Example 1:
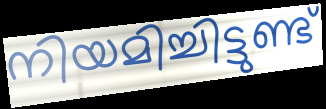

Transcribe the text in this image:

നിയമിച്ചിട്ടുണ്ട്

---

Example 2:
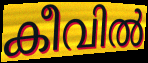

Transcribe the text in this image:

കീവിൽ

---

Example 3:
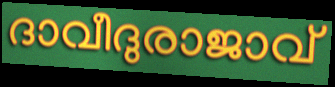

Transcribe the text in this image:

ദാവീദുരാജാവ്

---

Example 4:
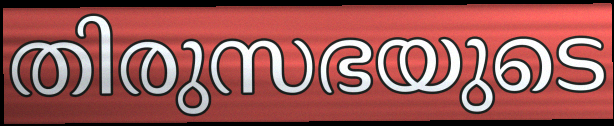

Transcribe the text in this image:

തിരുസഭയുടെ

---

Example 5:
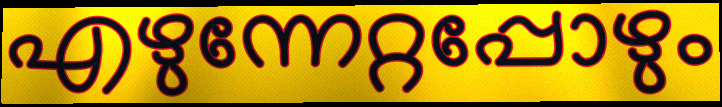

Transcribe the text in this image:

എഴുന്നേറ്റപ്പോഴും